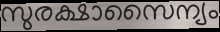
സുരക്ഷാസൈന്യം